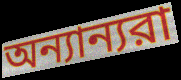
অন্যান্যরা